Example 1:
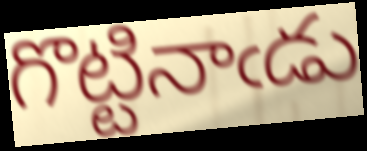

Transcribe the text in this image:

గొట్టినాఁడు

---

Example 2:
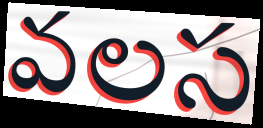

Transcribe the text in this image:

వలస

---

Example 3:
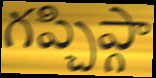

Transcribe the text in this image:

గప్చిప్గా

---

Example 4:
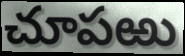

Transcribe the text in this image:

చూపఱు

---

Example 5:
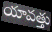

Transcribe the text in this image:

యావత్తు